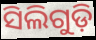
ସିଲିଗୁଡ଼ି